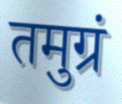
तमुग्रं